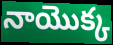
నాయొక్క